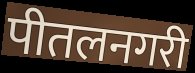
पीतलनगरी